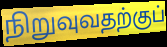
நிறுவுவதற்குப்